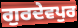
ਗੁਰਦੇਵਪੁਰ